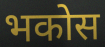
भकोस